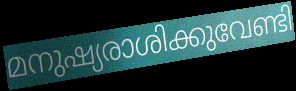
മനുഷ്യരാശിക്കുവേണ്ടി